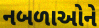
નબળાઓને